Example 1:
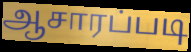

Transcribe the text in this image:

ஆசாரப்படி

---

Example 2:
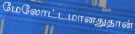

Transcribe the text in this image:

மேலோட்டமானதுதான்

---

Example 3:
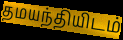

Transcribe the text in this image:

தமயந்தியிடம்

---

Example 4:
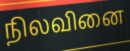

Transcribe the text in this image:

நிலவினை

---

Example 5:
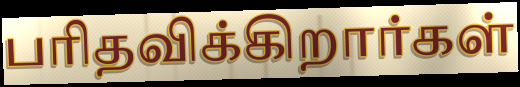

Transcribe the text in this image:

பரிதவிக்கிறார்கள்